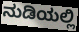
ನುಡಿಯಲ್ಲಿ